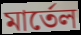
মার্তেল